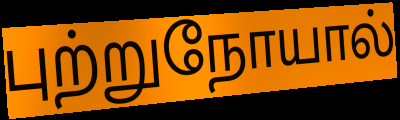
புற்றுநோயால்